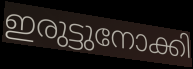
ഇരുട്ടുനോക്കി